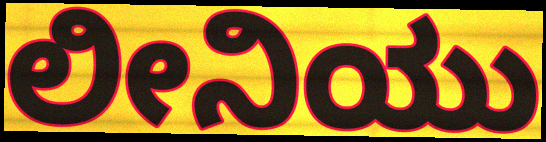
ಲೀನಿಯು